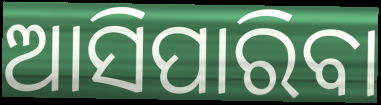
ଆସିପାରିବା